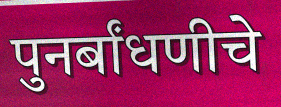
पुनर्बांधणीचे